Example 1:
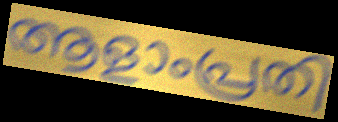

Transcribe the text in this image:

ആളാംപ്രതി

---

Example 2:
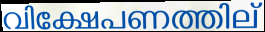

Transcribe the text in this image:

വിക്ഷേപണത്തില്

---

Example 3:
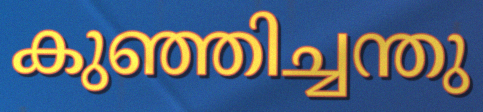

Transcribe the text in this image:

കുഞ്ഞിച്ചന്തു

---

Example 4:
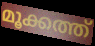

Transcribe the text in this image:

മൂക്കത്ത്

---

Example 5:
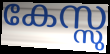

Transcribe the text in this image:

കേസ്സു